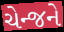
ચેન્જને